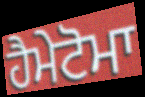
ਹੈਮੇਟੋਮਾ